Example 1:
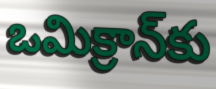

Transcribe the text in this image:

ఒమిక్రాన్‌కు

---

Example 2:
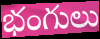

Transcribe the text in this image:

భంగులు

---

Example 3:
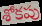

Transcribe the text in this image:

శోకపు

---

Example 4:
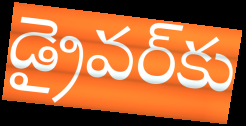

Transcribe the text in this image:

డ్రైవర్‌కు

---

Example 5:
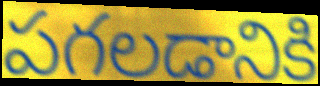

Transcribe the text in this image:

పగలడానికి